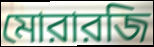
মোরারজি